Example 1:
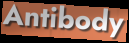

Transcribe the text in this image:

Antibody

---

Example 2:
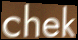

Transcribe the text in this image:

chek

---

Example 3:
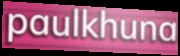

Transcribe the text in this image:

paulkhuna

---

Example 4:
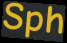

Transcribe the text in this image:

Sph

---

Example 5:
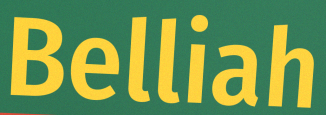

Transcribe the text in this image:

Belliah